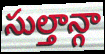
సుల్తాన్గా